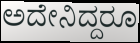
ಅದೇನಿದ್ದರೂ